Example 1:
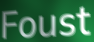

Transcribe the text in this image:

Foust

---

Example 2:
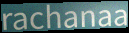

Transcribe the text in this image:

rachanaa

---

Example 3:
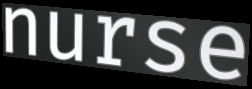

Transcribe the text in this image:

nurse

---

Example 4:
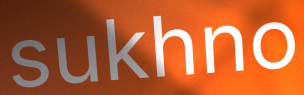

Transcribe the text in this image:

sukhno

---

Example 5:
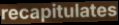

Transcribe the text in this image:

recapitulates